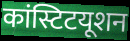
कांस्टिटयूशन